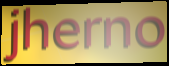
jherno